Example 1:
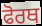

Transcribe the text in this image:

ਫੋਰਥ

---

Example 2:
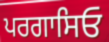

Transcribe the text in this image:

ਪਰਗਾਸਿਓ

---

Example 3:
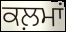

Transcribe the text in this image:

ਕਲ਼ਮਾਂ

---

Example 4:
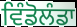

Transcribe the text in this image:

ਵਿੰਡੋਲੰਡਾ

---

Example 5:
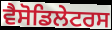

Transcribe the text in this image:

ਵੈਸੋਡਿਲੇਟਰਸ